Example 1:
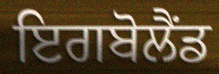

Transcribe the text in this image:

ਇਗਬੋਲੈਂਡ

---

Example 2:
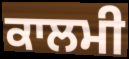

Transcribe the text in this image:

ਕਾਲਮੀ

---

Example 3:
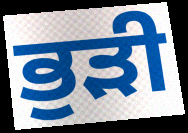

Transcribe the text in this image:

ਭੁੜੀ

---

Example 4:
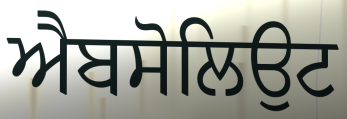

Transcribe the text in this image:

ਐਬਸੋਲਿਉਟ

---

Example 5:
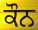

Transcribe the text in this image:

ਕੌਨ